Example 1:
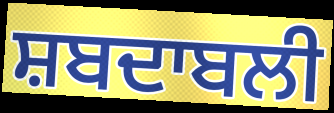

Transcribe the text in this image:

ਸ਼ਬਦਾਬਲੀ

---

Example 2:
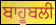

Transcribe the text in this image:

ਬਾਹੂਬਲੀ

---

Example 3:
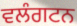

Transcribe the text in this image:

ਵਲੰਗਟਨ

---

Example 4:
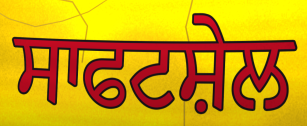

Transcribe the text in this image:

ਸਾਫਟਸ਼ੇਲ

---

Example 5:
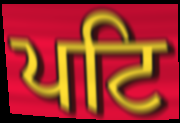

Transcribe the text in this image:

ਪਟਿ